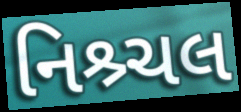
નિશ્ર્ચલ